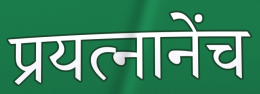
प्रयत्नानेंच